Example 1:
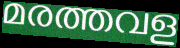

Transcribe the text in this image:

മരത്തവള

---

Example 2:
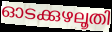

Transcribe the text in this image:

ഓടക്കുഴലൂതി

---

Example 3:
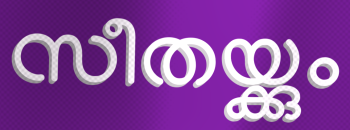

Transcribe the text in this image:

സീതയ്ക്കും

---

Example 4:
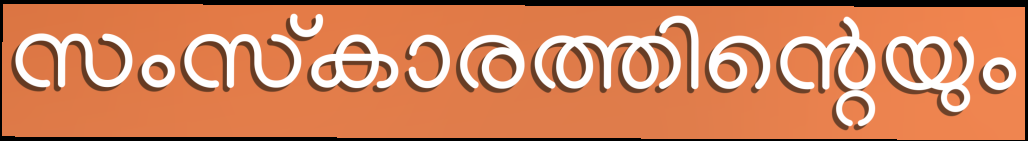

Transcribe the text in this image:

സംസ്‌കാരത്തിന്റെയും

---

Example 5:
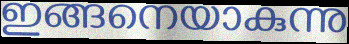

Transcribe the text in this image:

ഇങ്ങനെയാകുന്നു